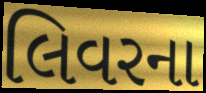
લિવરના